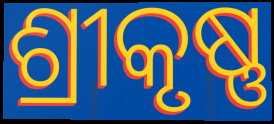
ଶ୍ରୀକୃଷ୍ଣ